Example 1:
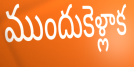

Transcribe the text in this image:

ముందుకెళ్లాక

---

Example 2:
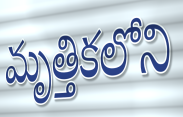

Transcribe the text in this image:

మృత్తికలోని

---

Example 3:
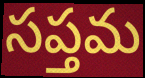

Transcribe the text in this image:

సప్తమ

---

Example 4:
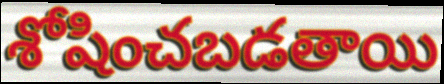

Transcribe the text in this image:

శోషించబడతాయి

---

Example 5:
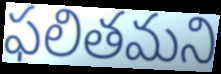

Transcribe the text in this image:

ఫలితమని